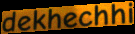
dekhechhi